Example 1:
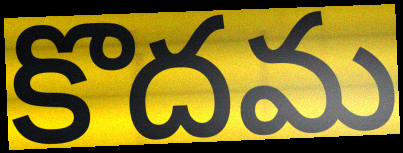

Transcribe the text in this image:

కొదమ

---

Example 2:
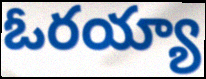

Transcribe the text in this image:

ఓరయ్యా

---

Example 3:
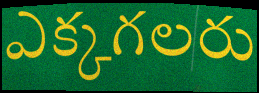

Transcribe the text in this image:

ఎక్కగలరు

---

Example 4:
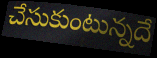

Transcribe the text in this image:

చేసుకుంటున్నదే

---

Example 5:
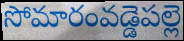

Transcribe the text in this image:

సోమారంవడ్డెపల్లె